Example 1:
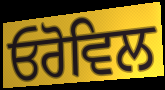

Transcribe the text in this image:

ਓਰੋਵਿਲ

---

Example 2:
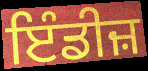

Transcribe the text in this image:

ਇੰਡੀਜ਼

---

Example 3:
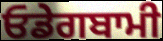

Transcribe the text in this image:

ਓਡੇਗਬਾਮੀ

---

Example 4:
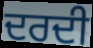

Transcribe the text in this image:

ਦਰਦੀ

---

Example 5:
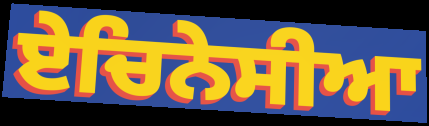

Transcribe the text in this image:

ਏਚਿਨੇਸੀਆ